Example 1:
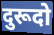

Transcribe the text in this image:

दुरूदो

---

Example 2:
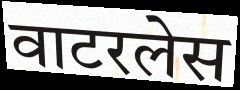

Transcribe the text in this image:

वाटरलेस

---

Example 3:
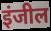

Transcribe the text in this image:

इंजील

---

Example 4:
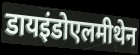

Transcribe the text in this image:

डायइंडोएलमीथेन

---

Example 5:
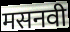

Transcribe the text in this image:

मसनवी